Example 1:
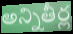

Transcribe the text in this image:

అన్నితీర్ల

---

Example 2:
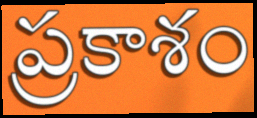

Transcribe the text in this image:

ప్రకాశం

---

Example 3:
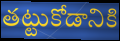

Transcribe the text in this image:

తట్టుకోడానికి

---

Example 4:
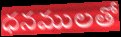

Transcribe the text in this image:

ధనములతో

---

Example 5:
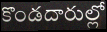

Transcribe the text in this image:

కొండదారుల్లో